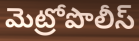
మెట్రోపొలీస్